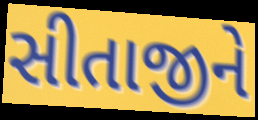
સીતાજીને